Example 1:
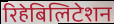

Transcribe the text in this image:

रिहेबिलिटेशन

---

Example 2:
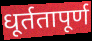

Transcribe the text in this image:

धूर्ततापूर्ण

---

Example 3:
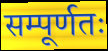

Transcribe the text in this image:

सम्पूर्णतः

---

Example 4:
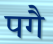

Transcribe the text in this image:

पगै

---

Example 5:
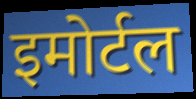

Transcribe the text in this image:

इमोर्टल